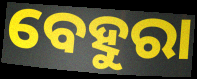
ବେହୁରା